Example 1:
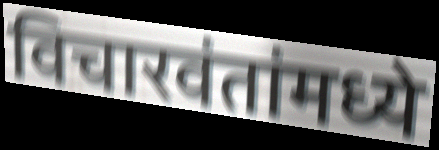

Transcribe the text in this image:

विचारवंतांमध्ये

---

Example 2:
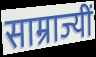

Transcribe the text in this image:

साम्राज्यीं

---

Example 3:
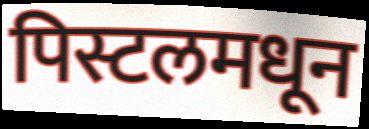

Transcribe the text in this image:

पिस्टलमधून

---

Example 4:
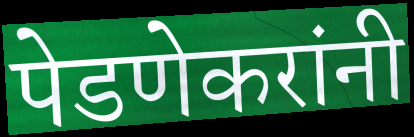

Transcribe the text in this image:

पेडणेकरांनी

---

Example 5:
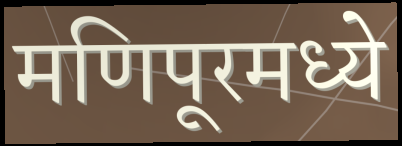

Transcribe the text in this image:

मणिपूरमध्ये